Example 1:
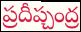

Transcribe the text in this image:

ప్రదీప్చంద్ర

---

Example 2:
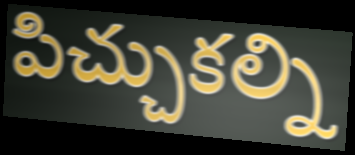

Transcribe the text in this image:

పిచ్చుకల్ని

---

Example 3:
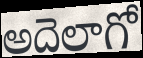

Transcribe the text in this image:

అదెలాగో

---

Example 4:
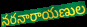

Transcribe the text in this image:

నరనారాయణుల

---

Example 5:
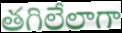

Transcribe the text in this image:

తగిలేలాగా